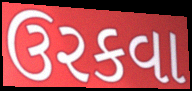
ઉરકવા